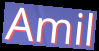
Amil